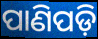
ପାଣିପଡ଼ି